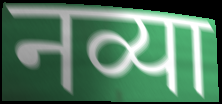
नव्या